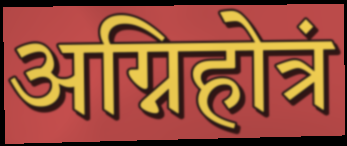
अग्निहोत्रं